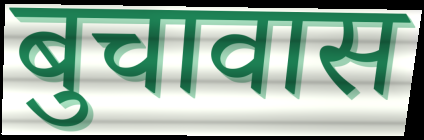
बुचावास